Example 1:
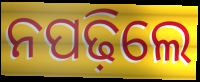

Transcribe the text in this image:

ନପଢ଼ିଲେ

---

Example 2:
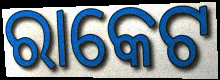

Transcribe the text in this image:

ରାକେଟ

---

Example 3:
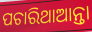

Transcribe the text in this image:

ପଚାରିଥାଆନ୍ତା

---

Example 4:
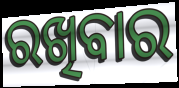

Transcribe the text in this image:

ରଖିବାର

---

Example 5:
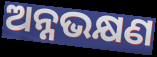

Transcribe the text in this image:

ଅନ୍ନଭକ୍ଷଣ